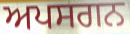
ਅਪਸਗਨ